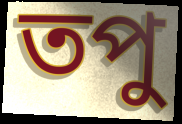
তপু